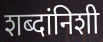
शब्दांनिशी